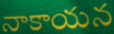
నాకాయన